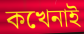
কখেনাই